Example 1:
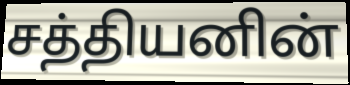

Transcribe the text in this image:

சத்தியனின்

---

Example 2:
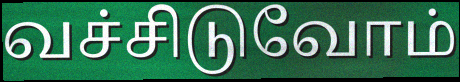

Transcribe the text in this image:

வச்சிடுவோம்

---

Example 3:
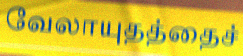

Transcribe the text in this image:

வேலாயுதத்தைச்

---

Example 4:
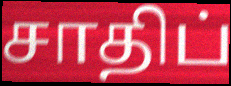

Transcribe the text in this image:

சாதிப்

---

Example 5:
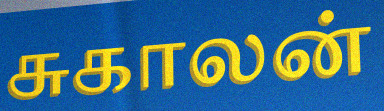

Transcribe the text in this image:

சுகாலன்